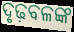
ଦୃଢ଼ବଳଙ୍କ